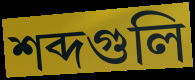
শব্দগুলি